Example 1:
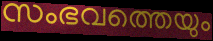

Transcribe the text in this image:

സംഭവത്തെയും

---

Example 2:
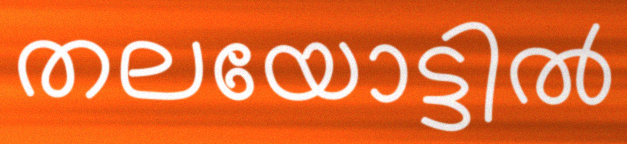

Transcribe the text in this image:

തലയോട്ടിൽ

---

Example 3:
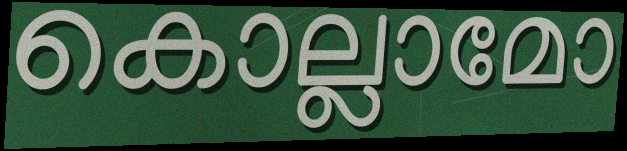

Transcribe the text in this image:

കൊല്ലാമോ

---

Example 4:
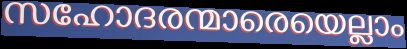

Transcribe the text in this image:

സഹോദരന്മാരെയെല്ലാം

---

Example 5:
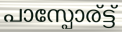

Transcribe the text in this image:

പാസ്പോര്ട്ട്